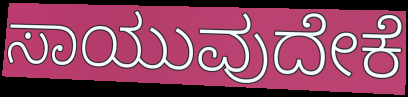
ಸಾಯುವುದೇಕೆ